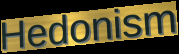
Hedonism